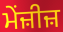
ਮੇਂਜ਼ੀਜ਼